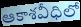
ఆకాశవీధిలో